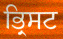
ਭ੍ਰਿਸਟ